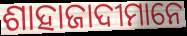
ଶାହାଜାଦୀମାନେ